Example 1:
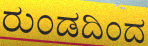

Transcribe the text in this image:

ರುಂಡದಿಂದ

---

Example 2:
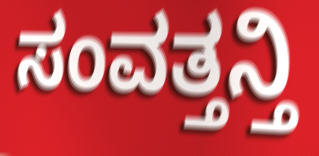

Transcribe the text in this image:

ಸಂವತ್ತನ್ತಿ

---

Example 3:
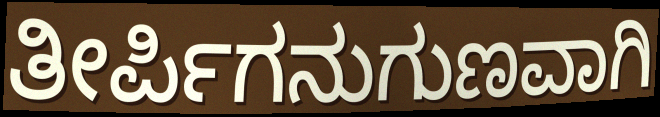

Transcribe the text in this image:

ತೀರ್ಪಿಗನುಗುಣವಾಗಿ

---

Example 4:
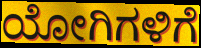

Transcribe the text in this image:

ಯೋಗಿಗಳಿಗೆ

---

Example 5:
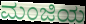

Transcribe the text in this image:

ಮಂಜಿಯ